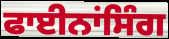
ਫਾਈਨਾਂਸਿੰਗ